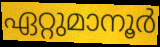
ഏറ്റുമാനൂർ